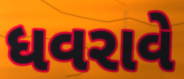
ધવરાવે